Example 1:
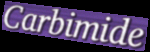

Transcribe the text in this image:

Carbimide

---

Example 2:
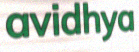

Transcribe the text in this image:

avidhya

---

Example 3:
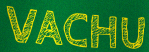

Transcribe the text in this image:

VACHU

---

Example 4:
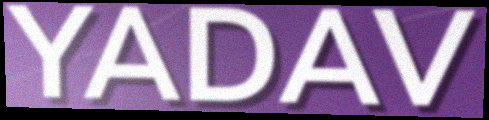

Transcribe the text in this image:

YADAV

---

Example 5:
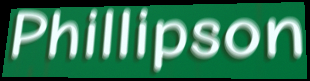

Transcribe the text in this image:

Phillipson